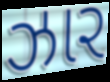
ઝાર